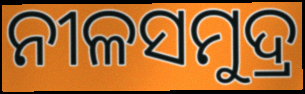
ନୀଳସମୁଦ୍ର